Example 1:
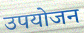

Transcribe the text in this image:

उपयोजन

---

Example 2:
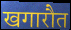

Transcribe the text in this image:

खगारौत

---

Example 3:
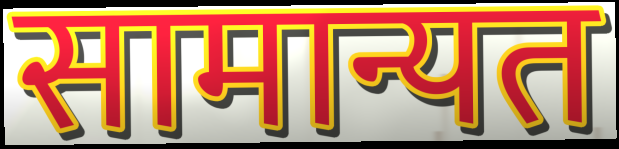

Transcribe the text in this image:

सामान्यत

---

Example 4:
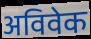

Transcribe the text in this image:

अविवेक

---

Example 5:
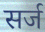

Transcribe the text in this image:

सर्ज